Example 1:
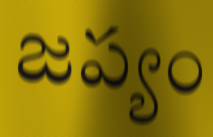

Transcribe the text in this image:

జప్యం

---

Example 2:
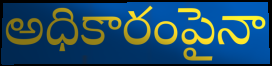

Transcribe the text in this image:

అధికారంపైనా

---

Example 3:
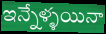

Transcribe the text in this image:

ఇన్నేళ్ళయినా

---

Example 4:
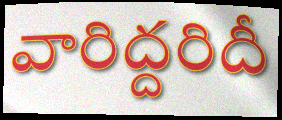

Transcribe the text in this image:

వారిద్దరిదీ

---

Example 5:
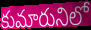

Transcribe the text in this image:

కుమారునిలో